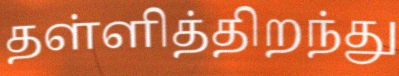
தள்ளித்திறந்து